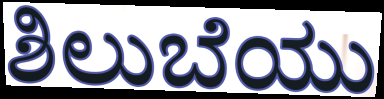
ಶಿಲುಬೆಯು